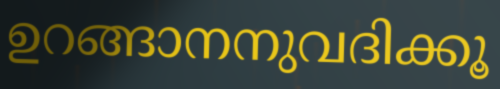
ഉറങ്ങാനനുവദിക്കൂ